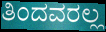
ತಿಂದವರಲ್ಲ